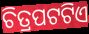
ଚିତ୍ରପଟଟିଏ